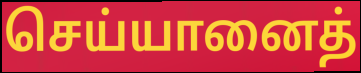
செய்யானைத்